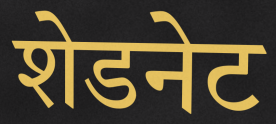
शेडनेट